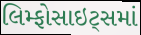
લિમ્ફોસાઇટ્સમાં